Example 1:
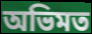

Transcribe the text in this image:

অভিমত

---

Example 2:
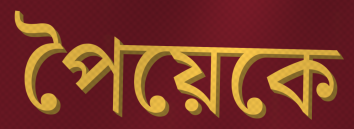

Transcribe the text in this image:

পৈয়েকে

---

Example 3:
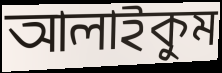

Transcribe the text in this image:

আলাইকুম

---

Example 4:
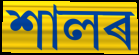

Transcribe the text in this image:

শালৰ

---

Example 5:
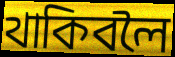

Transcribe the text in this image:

থাকিবলৈ